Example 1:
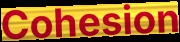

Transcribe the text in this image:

Cohesion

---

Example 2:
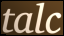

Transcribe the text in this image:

talc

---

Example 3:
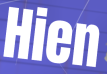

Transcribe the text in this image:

Hien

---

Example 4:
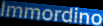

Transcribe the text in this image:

Immordino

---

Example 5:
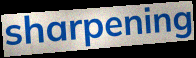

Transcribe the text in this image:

sharpening